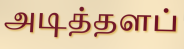
அடித்தளப்